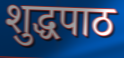
शुद्धपाठ